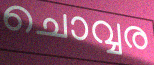
ചൊവ്വര